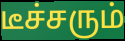
டீச்சரும்